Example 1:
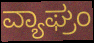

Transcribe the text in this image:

ವ್ಯಾಘ್ರಂ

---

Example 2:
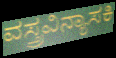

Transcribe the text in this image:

ವಸ್ತ್ರವಿನ್ಯಾಸಕಿ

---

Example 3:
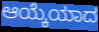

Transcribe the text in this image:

ಆಯ್ಕೆಯಾದ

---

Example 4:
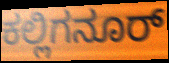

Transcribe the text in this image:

ಕಲ್ಲಿಗನೂರ್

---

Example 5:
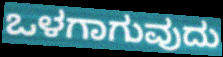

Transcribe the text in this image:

ಒಳಗಾಗುವುದು